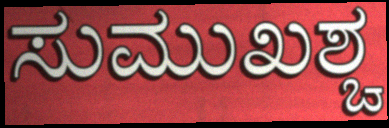
ಸುಮುಖಶ್ಚ